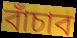
বাঁচাব